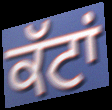
ਕੱਟਾਂ